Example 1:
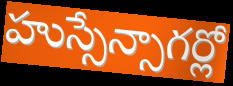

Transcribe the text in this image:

హుస్సేన్సాగర్లో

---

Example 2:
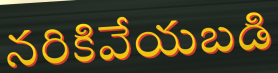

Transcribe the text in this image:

నరికివేయబడి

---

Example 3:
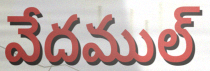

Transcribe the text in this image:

వేదముల్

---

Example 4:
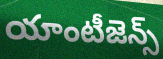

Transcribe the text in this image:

యాంటీజెన్స్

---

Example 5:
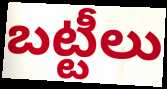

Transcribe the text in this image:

బట్టీలు